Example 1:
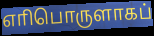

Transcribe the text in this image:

எரிபொருளாகப்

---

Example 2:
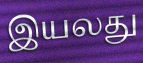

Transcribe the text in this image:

இயலது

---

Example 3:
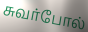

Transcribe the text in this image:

சுவர்போல்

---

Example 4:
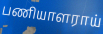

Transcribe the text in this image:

பணியாளராய்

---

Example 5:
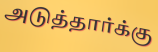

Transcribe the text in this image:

அடுத்தார்க்கு